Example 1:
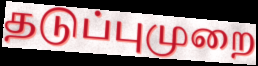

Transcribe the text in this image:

தடுப்புமுறை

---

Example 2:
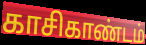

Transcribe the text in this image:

காசிகாண்டம்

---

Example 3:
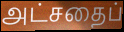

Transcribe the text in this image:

அட்சதைப்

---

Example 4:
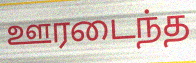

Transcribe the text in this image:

ஊரடைந்த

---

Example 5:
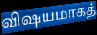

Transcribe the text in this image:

விஷயமாகத்